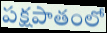
పక్షపాతంలో